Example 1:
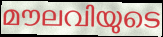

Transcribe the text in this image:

മൗലവിയുടെ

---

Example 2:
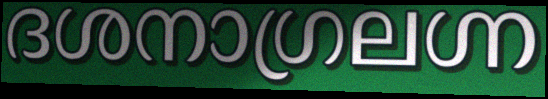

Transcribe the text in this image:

ദശനാഗ്രലഗ്ന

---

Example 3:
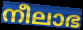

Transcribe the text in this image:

നീലാഭ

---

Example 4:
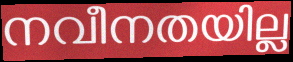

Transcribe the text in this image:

നവീനതയില്ല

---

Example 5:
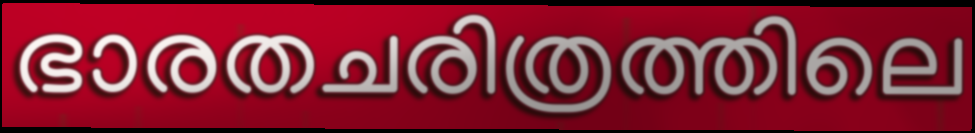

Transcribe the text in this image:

ഭാരതചരിത്രത്തിലെ